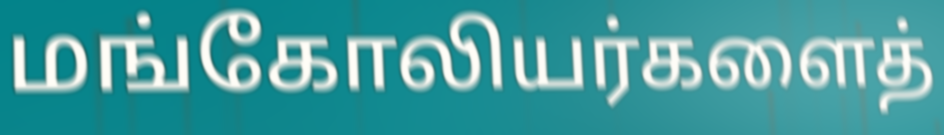
மங்கோலியர்களைத்